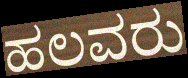
ಹಲವರು